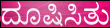
ದೂಷಿಸಿತು